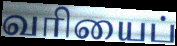
வரியைப்